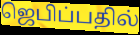
ஜெபிப்பதில்